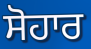
ਸੋਹਾਰ